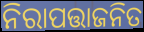
ନିରାପତ୍ତାଜନିତ